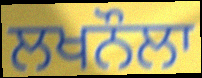
ਲਖਨੌਲਾ